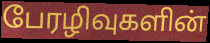
பேரழிவுகளின்